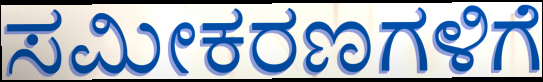
ಸಮೀಕರಣಗಳಿಗೆ